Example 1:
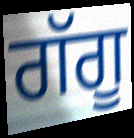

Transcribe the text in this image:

ਗੱਗੂ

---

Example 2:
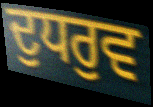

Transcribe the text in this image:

ਦੁਧਰੁਵ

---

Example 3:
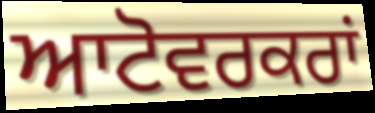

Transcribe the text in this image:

ਆਟੋਵਰਕਰਾਂ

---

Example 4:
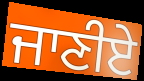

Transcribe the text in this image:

ਜਾਣੀਏ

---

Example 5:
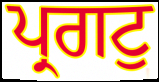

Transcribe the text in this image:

ਪ੍ਰਗਟੁ